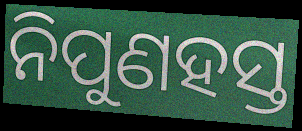
ନିପୁଣହସ୍ତ